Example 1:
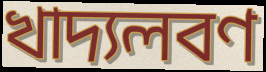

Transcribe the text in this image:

খাদ্যলবণ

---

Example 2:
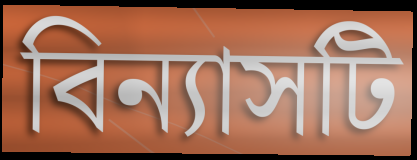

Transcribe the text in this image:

বিন্যাসটি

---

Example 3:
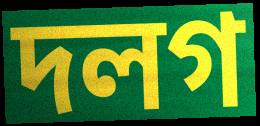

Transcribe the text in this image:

দলগ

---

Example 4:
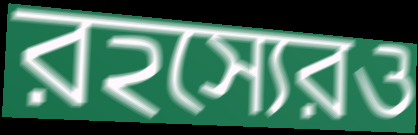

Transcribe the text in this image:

রহস্যেরও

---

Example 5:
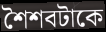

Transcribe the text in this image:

শৈশবটাকে